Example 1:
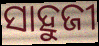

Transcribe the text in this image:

ସାହୁଜୀ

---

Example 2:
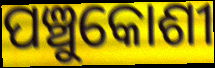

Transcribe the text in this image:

ପଞ୍ଚୁକୋଶୀ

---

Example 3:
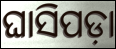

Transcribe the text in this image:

ଘାସିପଡ଼ା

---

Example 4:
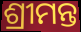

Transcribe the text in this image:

ଶ୍ରୀମନ୍ତ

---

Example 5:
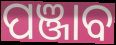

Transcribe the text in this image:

ପଞ୍ଜାବ